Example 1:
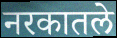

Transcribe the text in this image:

नरकातले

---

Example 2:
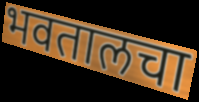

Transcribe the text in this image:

भवतालचा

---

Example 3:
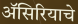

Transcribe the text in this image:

ॲसिरियाचे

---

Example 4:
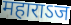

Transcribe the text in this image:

महाराऽज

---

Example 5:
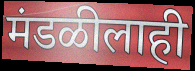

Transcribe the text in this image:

मंडळीलाही